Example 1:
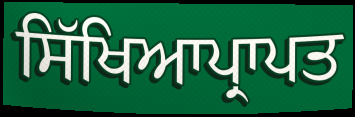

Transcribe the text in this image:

ਸਿੱਖਿਆਪ੍ਰਾਪਤ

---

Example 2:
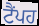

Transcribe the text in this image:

ਟੈਂਪਹ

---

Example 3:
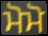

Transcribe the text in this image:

ਮੋਮੋ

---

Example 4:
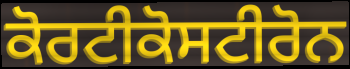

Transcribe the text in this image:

ਕੋਰਟੀਕੋਸਟੀਰੋਨ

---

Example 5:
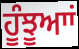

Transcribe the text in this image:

ਹੂੰਝੂਆਾਂ